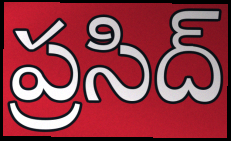
ప్రసిద్